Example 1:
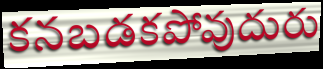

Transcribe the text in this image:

కనబడకపోవుదురు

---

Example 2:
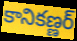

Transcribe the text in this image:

కానికణ్ణర్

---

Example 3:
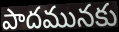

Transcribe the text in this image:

పాదమునకు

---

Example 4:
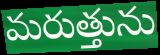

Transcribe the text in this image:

మరుత్తును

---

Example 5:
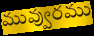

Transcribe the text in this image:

మువ్వురము